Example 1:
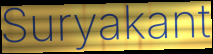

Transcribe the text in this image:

Suryakant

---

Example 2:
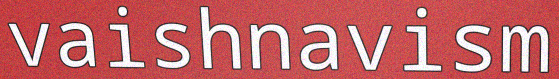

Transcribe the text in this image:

vaishnavism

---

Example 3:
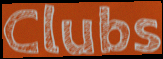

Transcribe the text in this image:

Clubs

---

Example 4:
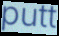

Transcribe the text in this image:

putt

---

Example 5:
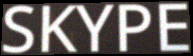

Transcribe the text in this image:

SKYPE